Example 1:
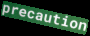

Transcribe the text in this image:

precaution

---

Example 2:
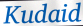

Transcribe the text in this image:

Kudaid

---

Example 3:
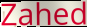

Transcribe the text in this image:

Zahed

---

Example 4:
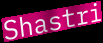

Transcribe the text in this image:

Shastri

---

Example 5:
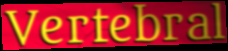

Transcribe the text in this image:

Vertebral